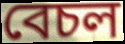
বেচল